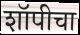
शॉपीचा